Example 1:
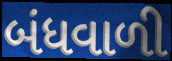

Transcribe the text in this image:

બંધવાળી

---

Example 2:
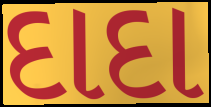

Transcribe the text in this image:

દાદા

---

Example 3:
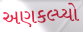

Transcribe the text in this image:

અણકલ્પ્યો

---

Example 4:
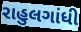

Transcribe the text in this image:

રાહુલગાંધી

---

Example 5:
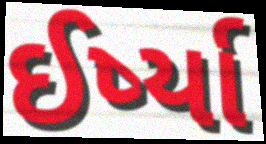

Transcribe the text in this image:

ઈર્ષ્યા